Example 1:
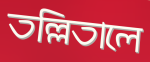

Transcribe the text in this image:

তল্লিতালে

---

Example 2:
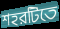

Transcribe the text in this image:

শহরটিতে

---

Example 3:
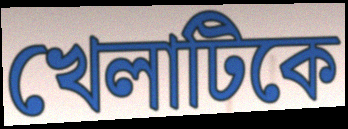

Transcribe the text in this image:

খেলাটিকে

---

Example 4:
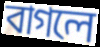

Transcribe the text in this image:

বাগলে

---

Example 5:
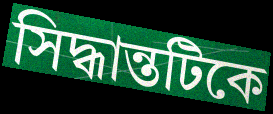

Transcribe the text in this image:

সিদ্ধান্তটিকে